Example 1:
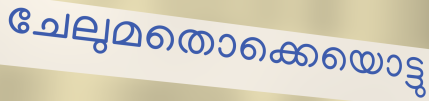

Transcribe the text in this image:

ചേലുമതൊക്കെയൊട്ടു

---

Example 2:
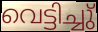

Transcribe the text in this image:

വെട്ടിച്ചു്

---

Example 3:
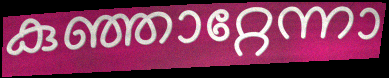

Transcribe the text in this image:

കുഞ്ഞാറ്റേന്നാ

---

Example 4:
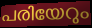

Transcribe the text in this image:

പരിയേറും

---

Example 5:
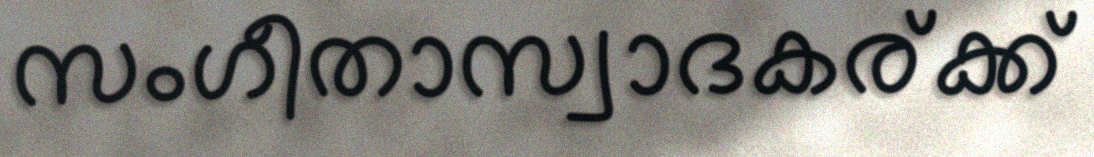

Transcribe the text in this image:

സംഗീതാസ്വാദകര്ക്ക്